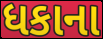
ધકાના